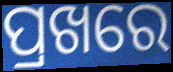
ପ୍ରଖରେ